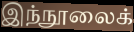
இந்நூலைக்